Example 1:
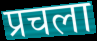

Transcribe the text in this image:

प्रचला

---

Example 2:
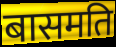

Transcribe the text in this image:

बासमति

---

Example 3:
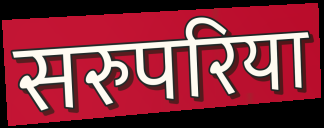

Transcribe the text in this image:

सरुपरिया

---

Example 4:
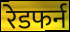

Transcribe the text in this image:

रेडफर्न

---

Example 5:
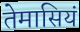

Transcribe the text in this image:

तेमासियं